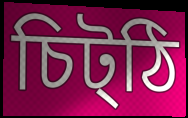
চিট্ঠি